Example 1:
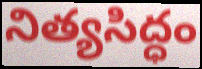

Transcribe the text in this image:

నిత్యసిద్ధం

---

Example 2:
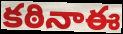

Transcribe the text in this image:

కఠినాఈ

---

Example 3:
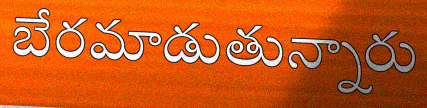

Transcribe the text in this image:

బేరమాడుతున్నారు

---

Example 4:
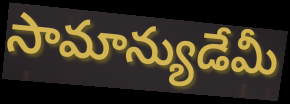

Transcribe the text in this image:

సామాన్యుడేమీ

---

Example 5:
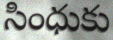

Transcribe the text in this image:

సింధుకు